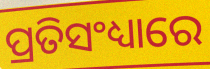
ପ୍ରତିସଂଧ୍ୟାରେ